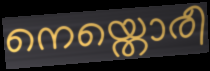
നെയ്തൊരീ